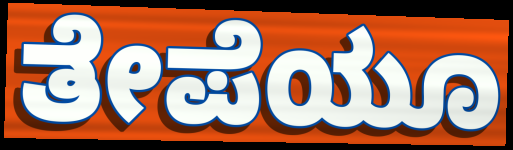
ತೇಪೆಯೂ